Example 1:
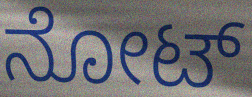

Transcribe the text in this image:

ನೋಟ್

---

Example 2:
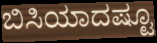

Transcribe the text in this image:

ಬಿಸಿಯಾದಷ್ಟೂ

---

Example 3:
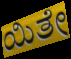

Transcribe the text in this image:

ಯಿತೇ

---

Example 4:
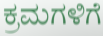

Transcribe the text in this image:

ಕ್ರಮಗಳಿಗೆ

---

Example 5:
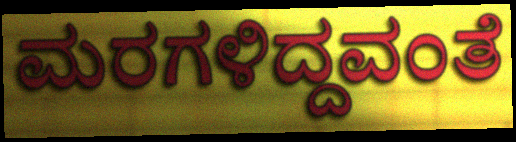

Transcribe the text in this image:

ಮರಗಳಿದ್ದವಂತೆ